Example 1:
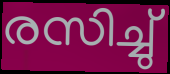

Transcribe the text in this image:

രസിച്ചു്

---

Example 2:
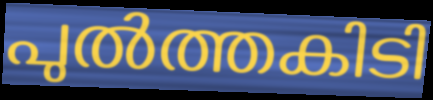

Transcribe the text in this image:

പുൽത്തകിടി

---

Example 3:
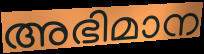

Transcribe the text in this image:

അഭിമാന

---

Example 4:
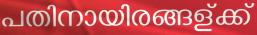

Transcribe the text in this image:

പതിനായിരങ്ങള്ക്ക്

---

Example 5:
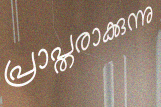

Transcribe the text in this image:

പ്രാപ്തരാക്കുന്നു